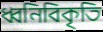
ধ্বনিবিকৃতি